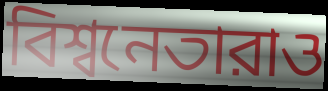
বিশ্বনেতারাও